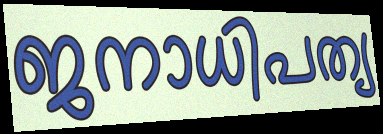
ജനാധിപത്യ